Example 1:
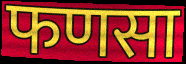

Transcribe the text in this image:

फणसा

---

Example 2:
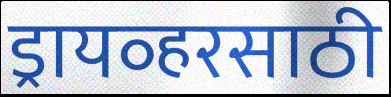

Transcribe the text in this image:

ड्रायव्हरसाठी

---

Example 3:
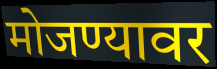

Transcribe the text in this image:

मोजण्यावर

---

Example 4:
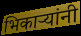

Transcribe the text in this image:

भिकाऱ्यांनी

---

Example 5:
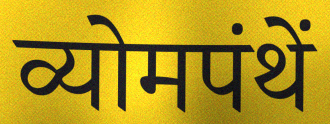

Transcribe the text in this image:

व्योमपंथें